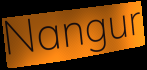
Nangur